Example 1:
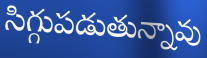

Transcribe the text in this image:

సిగ్గుపడుతున్నావు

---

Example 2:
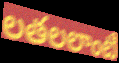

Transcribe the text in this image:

లతలలాంటి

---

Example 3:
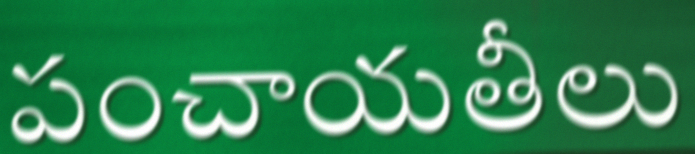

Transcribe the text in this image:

పంచాయతీలు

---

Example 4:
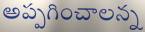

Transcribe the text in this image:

అప్పగించాలన్న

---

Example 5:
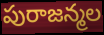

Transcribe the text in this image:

పురాజన్మల